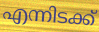
എന്നിടക്ക്